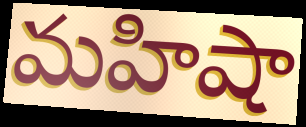
మహిషా